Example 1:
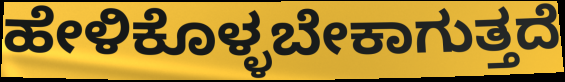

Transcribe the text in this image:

ಹೇಳಿಕೊಳ್ಳಬೇಕಾಗುತ್ತದೆ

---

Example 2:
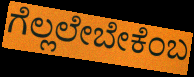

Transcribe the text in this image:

ಗೆಲ್ಲಲೇಬೇಕೆಂಬ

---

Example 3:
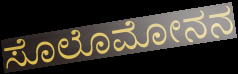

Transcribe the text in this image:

ಸೊಲೊಮೋನನ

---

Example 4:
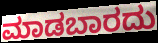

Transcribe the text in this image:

ಮಾಡಬಾರದು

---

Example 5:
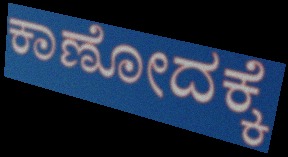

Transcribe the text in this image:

ಕಾಣೋದಕ್ಕೆ